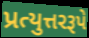
પ્રત્યુત્તરરૂપે